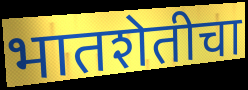
भातशेतीचा